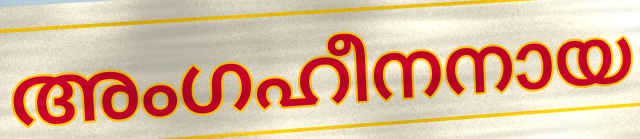
അംഗഹീനനായ